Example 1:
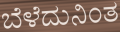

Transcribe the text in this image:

ಬೆಳೆದುನಿಂತ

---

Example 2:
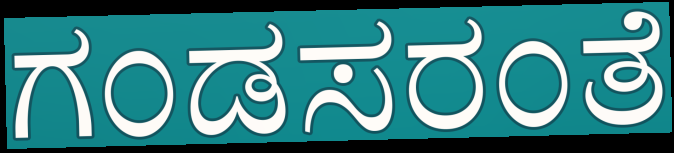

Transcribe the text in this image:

ಗಂಡಸರಂತೆ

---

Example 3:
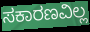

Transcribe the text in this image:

ಸಕಾರಣವಿಲ್ಲ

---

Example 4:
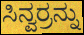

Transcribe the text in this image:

ಸಿನ್ವರ್ರನ್ನು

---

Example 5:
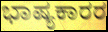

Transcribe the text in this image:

ಭಾಷ್ಯಕಾರರ